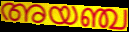
അയഞ്ച